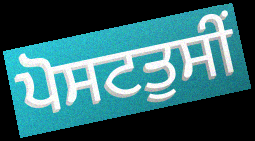
ਪੋਸਟਤੁਸੀਂ